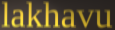
lakhavu